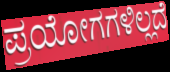
ಪ್ರಯೋಗಗಳಿಲ್ಲದೆ